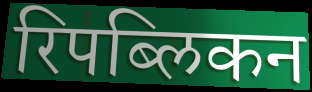
रिपब्लिकन